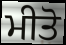
ਮੀਤੋ